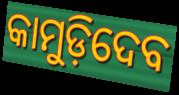
କାମୁଡ଼ିଦେବ